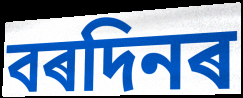
বৰদিনৰ